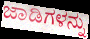
ಜಾಡಿಗಳನ್ನು